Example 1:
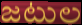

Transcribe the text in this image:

జటుల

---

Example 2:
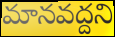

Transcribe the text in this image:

మానవద్దని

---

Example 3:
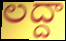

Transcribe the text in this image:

లద్దా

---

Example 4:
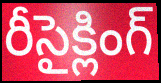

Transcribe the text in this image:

రీసైక్లింగ్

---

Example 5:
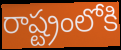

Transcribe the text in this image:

రాష్ట్రంలోకి